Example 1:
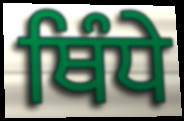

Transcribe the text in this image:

ਥਿੰਧੇ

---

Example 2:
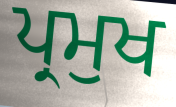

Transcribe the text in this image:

ਪ੍ਰਮੁਖ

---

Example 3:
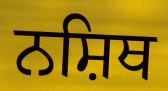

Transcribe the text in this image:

ਨਸ਼ਿਥ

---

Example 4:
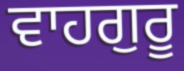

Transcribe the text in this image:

ਵਾਹਗੁਰੂ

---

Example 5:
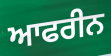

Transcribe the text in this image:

ਆਫਰੀਨ